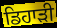
ਡਿਹਾੜੀ